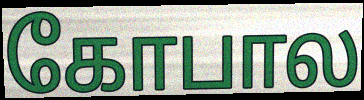
கோபால